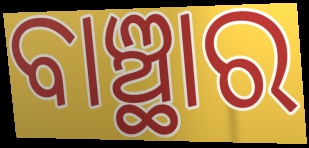
ବାଞ୍ଛାର